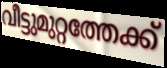
വീട്ടുമുറ്റത്തേക്ക്